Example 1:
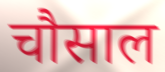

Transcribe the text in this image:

चौसाल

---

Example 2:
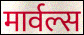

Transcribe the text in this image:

मार्वल्स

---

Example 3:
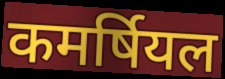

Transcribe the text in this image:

कमर्षियल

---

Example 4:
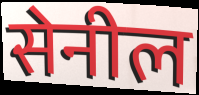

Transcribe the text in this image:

सेनील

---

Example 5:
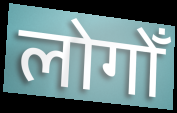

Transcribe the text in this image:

लोगोँ